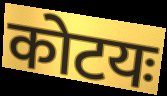
कोटयः